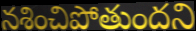
నశించిపోతుందని